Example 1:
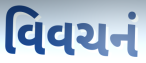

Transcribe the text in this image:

વિવચનં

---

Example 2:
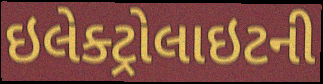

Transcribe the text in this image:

ઇલેક્ટ્રોલાઇટની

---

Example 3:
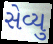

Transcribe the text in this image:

સેવ્યુ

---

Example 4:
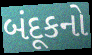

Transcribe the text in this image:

બંદૂકનો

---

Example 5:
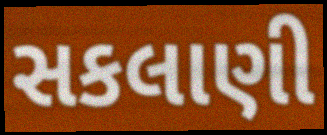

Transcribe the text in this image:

સકલાણી